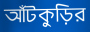
আঁটকুড়ির